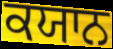
ਕਯਾਨ